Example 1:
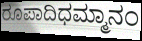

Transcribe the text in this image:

ರೂಪಾದಿಧಮ್ಮಾನಂ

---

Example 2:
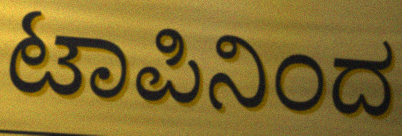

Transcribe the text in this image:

ಟಾಪಿನಿಂದ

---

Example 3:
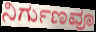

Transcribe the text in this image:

ನಿರ್ಗುಣವೂ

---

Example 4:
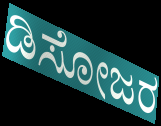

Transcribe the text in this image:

ಡಿಸೋಜರ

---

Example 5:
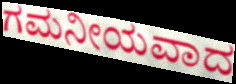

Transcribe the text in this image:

ಗಮನೀಯವಾದ